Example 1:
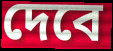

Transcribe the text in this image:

দেবে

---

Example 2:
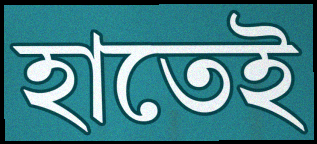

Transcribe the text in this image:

হাতেই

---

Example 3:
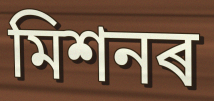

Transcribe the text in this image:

মিশনৰ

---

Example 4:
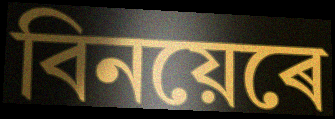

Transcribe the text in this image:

বিনয়েৰে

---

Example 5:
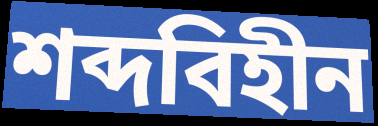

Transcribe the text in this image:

শব্দবিহীন